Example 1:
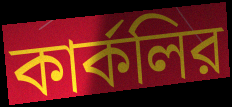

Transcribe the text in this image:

কার্কলির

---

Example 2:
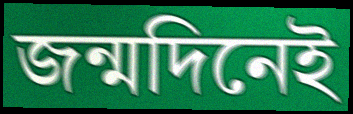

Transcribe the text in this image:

জন্মদিনেই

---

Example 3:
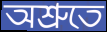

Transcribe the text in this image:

অশ্রুতে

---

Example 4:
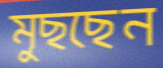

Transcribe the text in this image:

মুছছেন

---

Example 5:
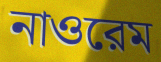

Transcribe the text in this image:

নাওরেম